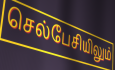
செல்பேசியிலும்